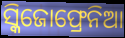
ସ୍କିଜୋଫ୍ରେନିଆ